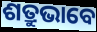
ଶତ୍ରୁଭାବେ